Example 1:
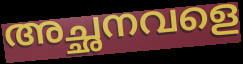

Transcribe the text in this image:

അച്ഛനവളെ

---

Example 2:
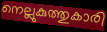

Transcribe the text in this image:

നെല്ലുകുത്തുകാരി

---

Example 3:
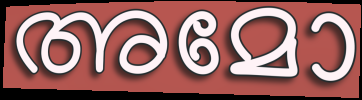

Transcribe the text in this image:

അമോ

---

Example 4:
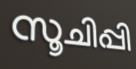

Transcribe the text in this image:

സൂചിപ്പി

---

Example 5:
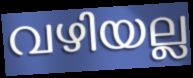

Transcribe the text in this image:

വഴിയല്ല